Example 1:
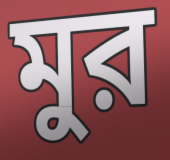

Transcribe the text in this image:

মুর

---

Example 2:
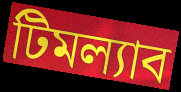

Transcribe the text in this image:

টিমল্যাব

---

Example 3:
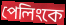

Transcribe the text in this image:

পেলিংকে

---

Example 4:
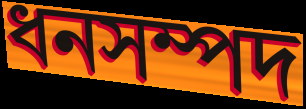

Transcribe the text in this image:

ধনসম্পদ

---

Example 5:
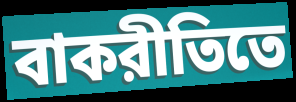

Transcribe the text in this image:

বাকরীতিতে